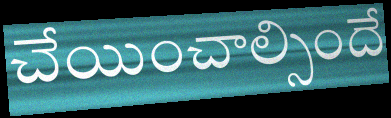
చేయించాల్సిందే